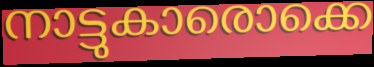
നാട്ടുകാരൊക്കെ